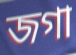
জগা